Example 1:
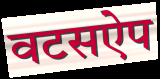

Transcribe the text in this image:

वटसऐप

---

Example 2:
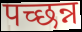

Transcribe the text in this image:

पच्छन्न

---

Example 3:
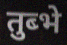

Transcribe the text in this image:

तुब्भे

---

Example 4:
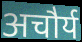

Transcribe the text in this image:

अचौर्य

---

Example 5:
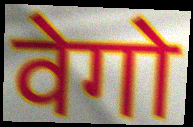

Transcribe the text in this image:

वेगो